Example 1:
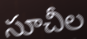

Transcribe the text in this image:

సూచీల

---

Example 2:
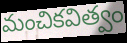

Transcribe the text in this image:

మంచికవిత్వం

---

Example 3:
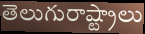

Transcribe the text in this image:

తెలుగురాష్ట్రాలు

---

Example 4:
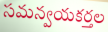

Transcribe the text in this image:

సమన్వయకర్తల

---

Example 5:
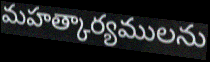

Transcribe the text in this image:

మహత్కార్యములను